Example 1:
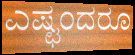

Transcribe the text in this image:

ಎಷ್ಟಂದರೂ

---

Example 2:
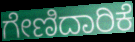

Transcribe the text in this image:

ಗೇಣಿದಾರಿಕೆ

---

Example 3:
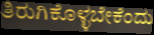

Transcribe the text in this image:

ತಿರುಗಿಕೊಳ್ಳಬೇಕೆಂದು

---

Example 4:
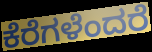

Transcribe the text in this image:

ಕೆರೆಗಳೆಂದರೆ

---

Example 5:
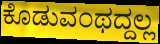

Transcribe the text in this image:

ಕೊಡುವಂಥದ್ದಲ್ಲ